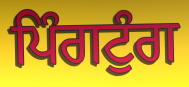
ਪਿੰਗਟੁੰਗ